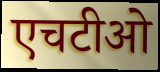
एचटीओ